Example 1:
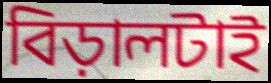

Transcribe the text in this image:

বিড়ালটাই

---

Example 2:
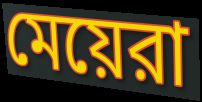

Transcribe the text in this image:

মেয়েরা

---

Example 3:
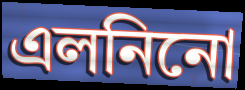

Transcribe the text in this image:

এলনিনো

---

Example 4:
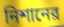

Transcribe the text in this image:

নিশানের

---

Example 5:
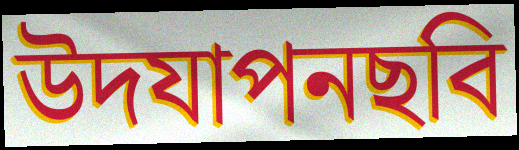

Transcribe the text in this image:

উদযাপনছবি